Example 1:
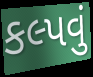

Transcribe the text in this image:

કલ્પવું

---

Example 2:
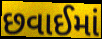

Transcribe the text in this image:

છવાઈમાં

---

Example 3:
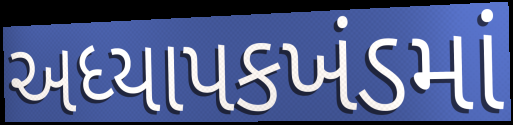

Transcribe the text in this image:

અધ્યાપકખંડમાં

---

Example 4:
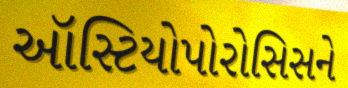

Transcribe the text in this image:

ઑસ્ટિયોપોરોસિસને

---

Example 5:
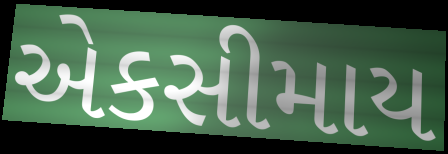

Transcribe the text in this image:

એકસીમાય